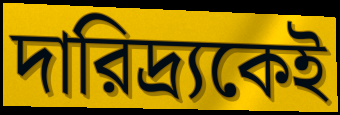
দারিদ্র্যকেই